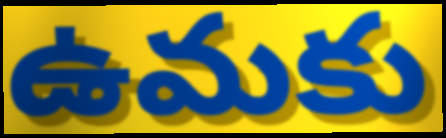
ఉమకు